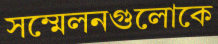
সম্মেলনগুলোকে